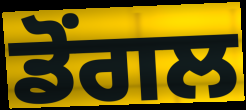
ਡੋਂਗਲ